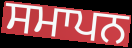
ਸਮਾਪਨ